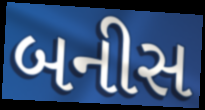
બનીસ